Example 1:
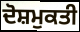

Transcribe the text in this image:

ਦੋਸ਼ਮੁਕਤੀ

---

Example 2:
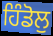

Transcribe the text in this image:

ਹਿੰਡੋਲੁ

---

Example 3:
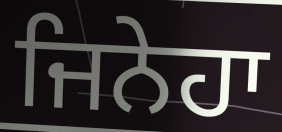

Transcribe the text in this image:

ਜਿਨੇਹਾ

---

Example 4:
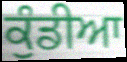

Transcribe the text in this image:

ਕੁੰਡੀਆ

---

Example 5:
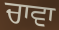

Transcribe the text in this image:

ਚਾਵਾ